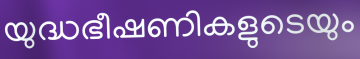
യുദ്ധഭീഷണികളുടെയും